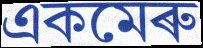
একমেৰু